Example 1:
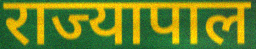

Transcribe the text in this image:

राज्यापाल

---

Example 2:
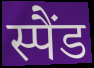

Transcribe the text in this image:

स्पैंड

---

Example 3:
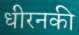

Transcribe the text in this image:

धीरनकी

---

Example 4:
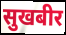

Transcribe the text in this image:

सुखबीर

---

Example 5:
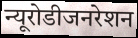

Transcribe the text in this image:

न्यूरोडीजनरेशन